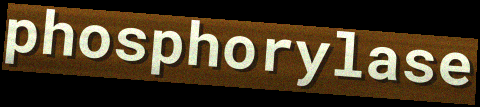
phosphorylase